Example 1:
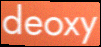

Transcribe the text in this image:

deoxy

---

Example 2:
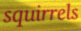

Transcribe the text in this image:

squirrels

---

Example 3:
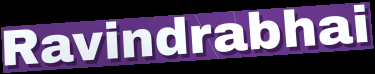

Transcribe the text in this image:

Ravindrabhai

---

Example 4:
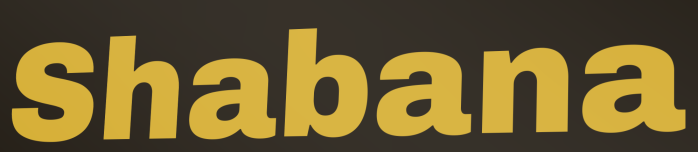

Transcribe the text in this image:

Shabana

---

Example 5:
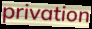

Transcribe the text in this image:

privation